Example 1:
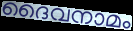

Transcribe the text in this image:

ദൈവനാമം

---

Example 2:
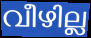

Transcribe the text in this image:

വീഴില്ല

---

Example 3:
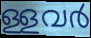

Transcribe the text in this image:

ള്ളവർ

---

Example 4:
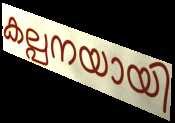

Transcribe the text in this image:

കല്പനയായി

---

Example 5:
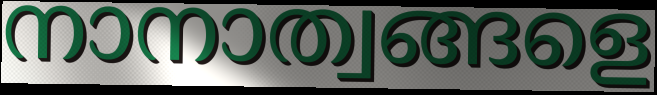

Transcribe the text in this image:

നാനാത്വങ്ങളെ